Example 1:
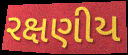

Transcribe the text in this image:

રક્ષણીય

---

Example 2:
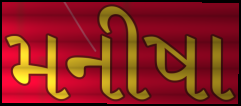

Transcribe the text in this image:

મનીષા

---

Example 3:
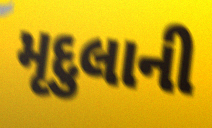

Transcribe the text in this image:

મૃદુલાની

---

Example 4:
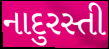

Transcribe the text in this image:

નાદુરસ્તી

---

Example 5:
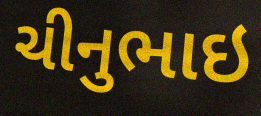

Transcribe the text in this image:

ચીનુભાઇ